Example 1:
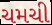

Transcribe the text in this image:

ચમચી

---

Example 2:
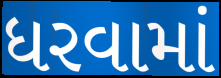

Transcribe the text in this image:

ધરવામાં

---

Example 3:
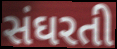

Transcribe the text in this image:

સંઘરતી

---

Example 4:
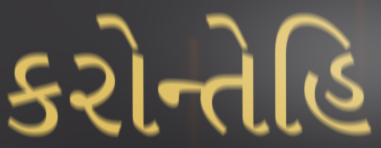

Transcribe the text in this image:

કરોન્તેહિ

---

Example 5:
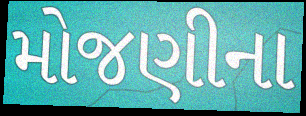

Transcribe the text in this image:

મોજણીના